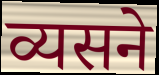
व्यसने